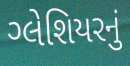
ગ્લેશિયરનું